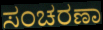
ಸಂಚರಣಾ